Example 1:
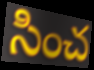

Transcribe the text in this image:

సించ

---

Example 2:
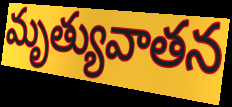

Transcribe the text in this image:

మృత్యువాతన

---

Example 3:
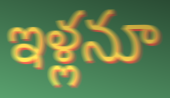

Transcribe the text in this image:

ఇళ్లనూ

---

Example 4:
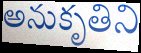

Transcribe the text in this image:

అనుకృతిని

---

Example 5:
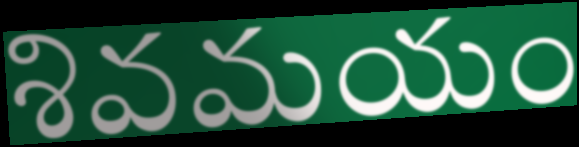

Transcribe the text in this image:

శివమయం